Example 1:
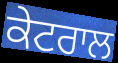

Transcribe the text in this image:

ਕੇਟਰਾਲ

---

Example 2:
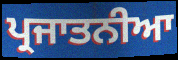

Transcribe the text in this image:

ਪ੍ਰਜਾਤਨੀਆ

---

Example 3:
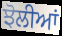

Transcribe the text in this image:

ਝੋਲੀਆਂ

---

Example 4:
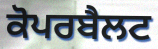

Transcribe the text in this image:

ਕੋਪਰਬੈਲਟ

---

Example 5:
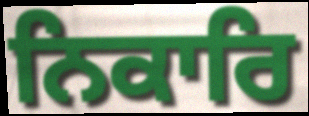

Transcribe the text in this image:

ਨਿਕਾਰਿ